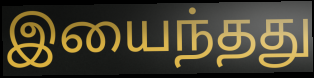
இயைந்தது